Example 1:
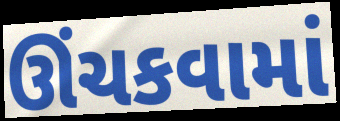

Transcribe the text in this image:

ઊંચકવામાં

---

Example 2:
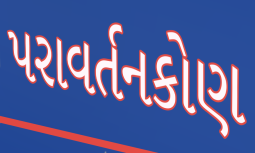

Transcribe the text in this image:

પરાવર્તનકોણ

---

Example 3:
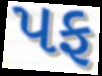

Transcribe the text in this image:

પફ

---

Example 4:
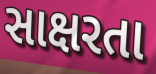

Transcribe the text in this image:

સાક્ષરતા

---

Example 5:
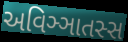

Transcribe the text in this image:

અવિઞ્ઞાતસ્સ